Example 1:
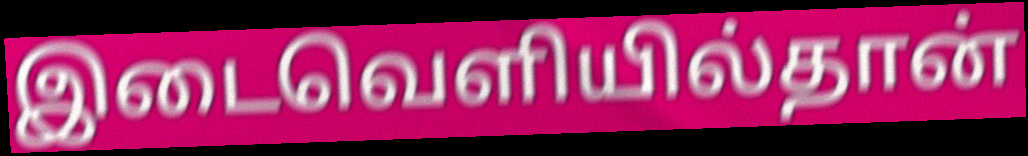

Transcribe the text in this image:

இடைவெளியில்தான்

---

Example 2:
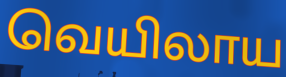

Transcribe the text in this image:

வெயிலாய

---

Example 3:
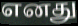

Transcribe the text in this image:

எனது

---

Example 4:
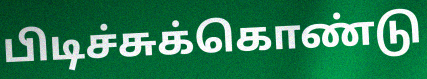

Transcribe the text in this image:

பிடிச்சுக்கொண்டு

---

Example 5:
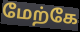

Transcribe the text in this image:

மேற்கே